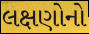
લક્ષણોનો